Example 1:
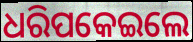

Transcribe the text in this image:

ଧରିପକେଇଲେ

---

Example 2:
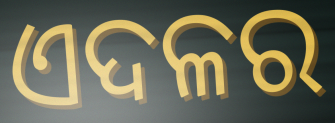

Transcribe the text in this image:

ଏଦଳର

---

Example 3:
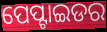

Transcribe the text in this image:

ପେପ୍ଟାଇଡର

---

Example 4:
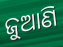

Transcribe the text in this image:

ଜୁଆଣି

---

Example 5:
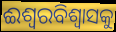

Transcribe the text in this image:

ଈଶ୍ୱରବିଶ୍ୱାସକୁ